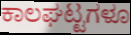
ಕಾಲಘಟ್ಟಗಳೂ